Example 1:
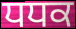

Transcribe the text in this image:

ਧਧਕ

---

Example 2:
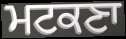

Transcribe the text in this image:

ਮਟਕਣਾ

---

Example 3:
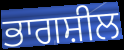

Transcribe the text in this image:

ਭਾਗਸ਼ੀਲ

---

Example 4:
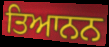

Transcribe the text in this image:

ਤਿਆਨਨ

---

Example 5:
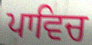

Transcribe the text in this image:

ਪਾਵਿਚ